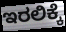
ಇರಲಿಕ್ಕೆ